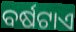
ବର୍ଷଟାଏ